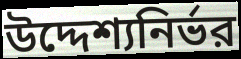
উদ্দেশ্যনির্ভর